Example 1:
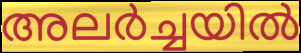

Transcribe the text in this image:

അലർച്ചയിൽ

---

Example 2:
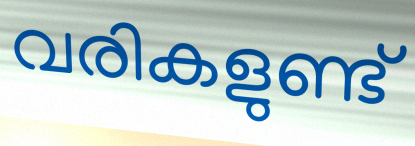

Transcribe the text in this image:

വരികളുണ്ട്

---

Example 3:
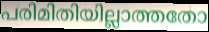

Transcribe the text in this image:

പരിമിതിയില്ലാത്തതോ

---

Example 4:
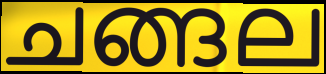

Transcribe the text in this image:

ചങ്ങല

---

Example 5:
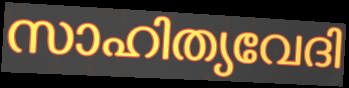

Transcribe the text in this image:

സാഹിത്യവേദി